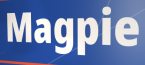
Magpie